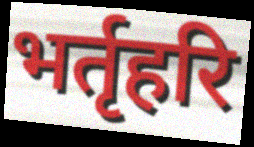
भर्तृहरि